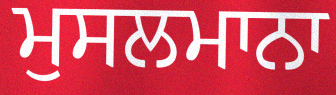
ਮੁਸਲਮਾਨਾ